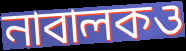
নাবালকও